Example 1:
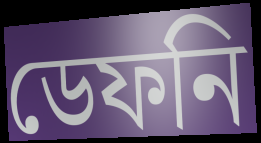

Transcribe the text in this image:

ডেফনি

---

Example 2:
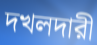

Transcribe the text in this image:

দখলদারী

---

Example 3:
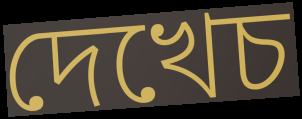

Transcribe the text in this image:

দেখেচ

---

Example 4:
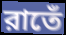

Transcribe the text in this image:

রাতেঁ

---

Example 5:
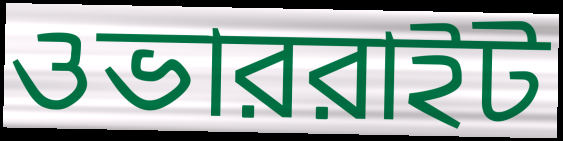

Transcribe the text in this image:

ওভাররাইট